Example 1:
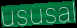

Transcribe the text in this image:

ususal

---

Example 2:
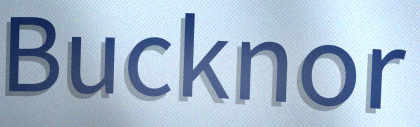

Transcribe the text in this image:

Bucknor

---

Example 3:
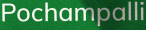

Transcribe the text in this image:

Pochampalli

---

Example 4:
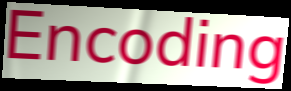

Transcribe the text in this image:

Encoding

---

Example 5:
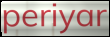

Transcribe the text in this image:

periyar